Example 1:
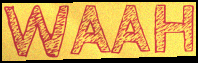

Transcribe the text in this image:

WAAH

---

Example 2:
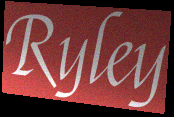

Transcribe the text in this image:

Ryley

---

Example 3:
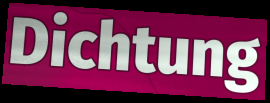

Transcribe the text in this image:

Dichtung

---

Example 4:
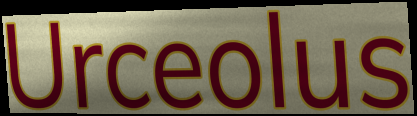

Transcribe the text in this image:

Urceolus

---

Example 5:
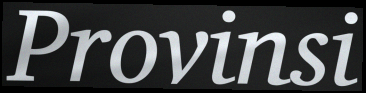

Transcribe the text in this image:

Provinsi